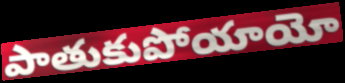
పాతుకుపోయాయో